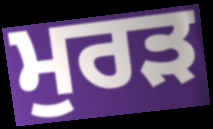
ਮੁਰੜ